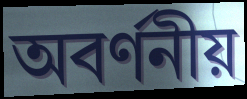
অবর্ণনীয়